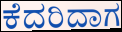
ಕೆದರಿದಾಗ